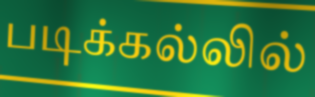
படிக்கல்லில்